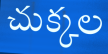
చుక్కల